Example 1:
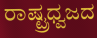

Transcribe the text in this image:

ರಾಷ್ಟ್ರಧ್ವಜದ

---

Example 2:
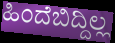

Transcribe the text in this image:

ಹಿಂದೆಬಿದ್ದಿಲ್ಲ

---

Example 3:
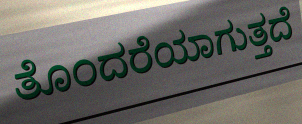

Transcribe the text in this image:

ತೊಂದರೆಯಾಗುತ್ತದೆ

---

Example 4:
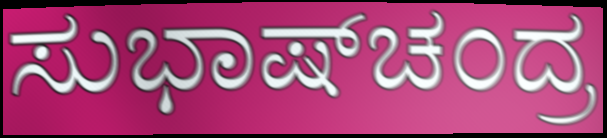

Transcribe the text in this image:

ಸುಭಾಷ್‌ಚಂದ್ರ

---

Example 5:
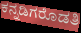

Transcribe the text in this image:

ಕನ್ನಡಿಗರೊಡತಿ